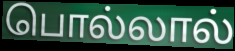
பொல்லால்